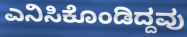
ಎನಿಸಿಕೊಂಡಿದ್ದವು